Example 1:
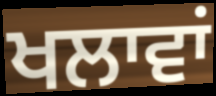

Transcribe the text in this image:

ਖਲਾਵਾਂ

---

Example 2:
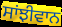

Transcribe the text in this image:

ਸਾਂਝੀਵਾਨ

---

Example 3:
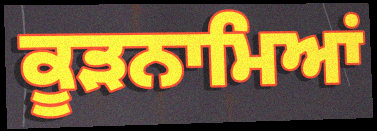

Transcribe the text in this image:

ਕੂੜਨਾਮਿਆਂ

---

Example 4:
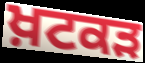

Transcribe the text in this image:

ਖ਼ਟਕੜ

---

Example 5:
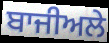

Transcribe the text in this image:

ਬਾਜੀਅਲੇ